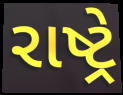
રાષ્ટ્રે